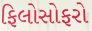
ફિલોસોફરો